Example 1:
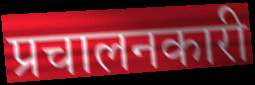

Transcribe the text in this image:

प्रचालनकारी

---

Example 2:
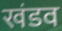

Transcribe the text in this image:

खंडव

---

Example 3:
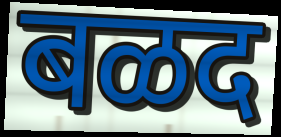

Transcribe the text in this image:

बळद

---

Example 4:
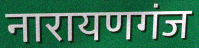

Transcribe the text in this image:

नारायणगंज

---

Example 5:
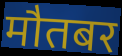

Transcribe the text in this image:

मौतबर